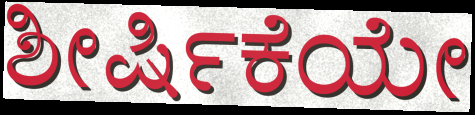
ಶೀರ್ಷಿಕೆಯೇ